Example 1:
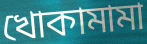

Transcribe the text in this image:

খোকামামা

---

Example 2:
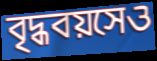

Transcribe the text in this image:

বৃদ্ধবয়সেও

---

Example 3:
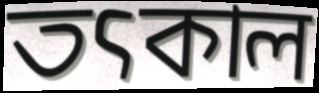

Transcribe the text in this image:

তৎকাল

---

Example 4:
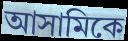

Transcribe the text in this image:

আসামিকে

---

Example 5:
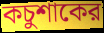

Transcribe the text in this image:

কচুশাকের